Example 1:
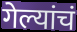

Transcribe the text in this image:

गेल्यांचं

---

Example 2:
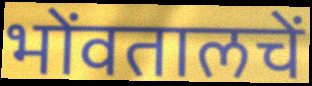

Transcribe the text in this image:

भोंवतालचें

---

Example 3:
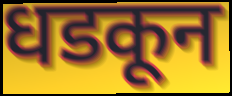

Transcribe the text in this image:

धडकून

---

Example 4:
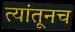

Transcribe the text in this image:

त्यांतूनच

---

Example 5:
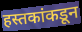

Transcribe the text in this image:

हस्तकांकडून